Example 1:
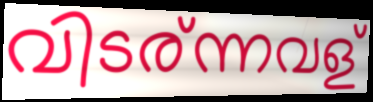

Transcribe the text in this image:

വിടര്ന്നവള്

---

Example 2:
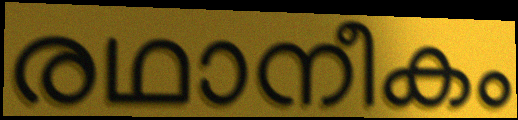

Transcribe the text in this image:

രഥാനീകം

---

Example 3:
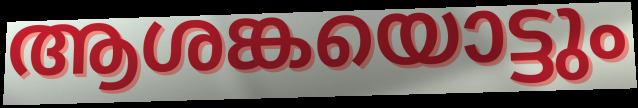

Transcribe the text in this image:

ആശങ്കയൊട്ടും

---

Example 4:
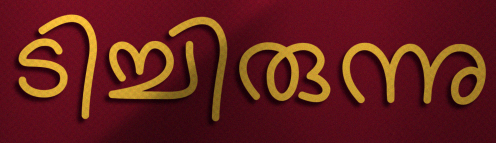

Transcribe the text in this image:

ടിച്ചിരുന്നു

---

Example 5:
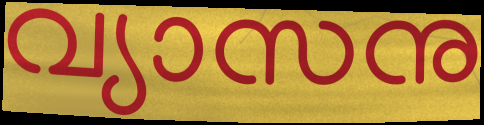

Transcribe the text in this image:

വ്യാസനു